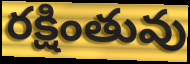
రక్షింతువు